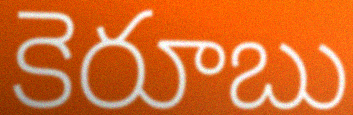
కెరూబు